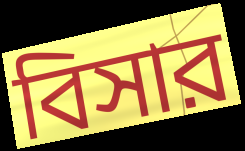
বিসার